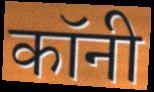
कॉनी